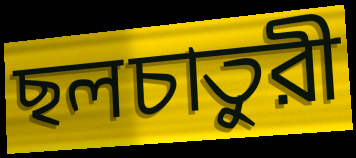
ছলচাতুরী